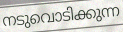
നടുവൊടിക്കുന്ന